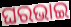
ଘରଭାଇ